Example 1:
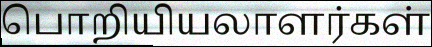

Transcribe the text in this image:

பொறியியலாளர்கள்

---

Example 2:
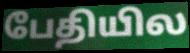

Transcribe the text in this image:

பேதியில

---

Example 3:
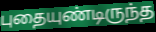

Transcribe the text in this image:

புதையுண்டிருந்த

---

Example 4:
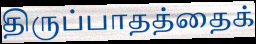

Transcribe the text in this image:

திருப்பாதத்தைக்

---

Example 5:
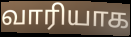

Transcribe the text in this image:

வாரியாக